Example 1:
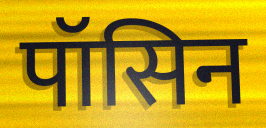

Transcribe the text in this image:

पॉसिन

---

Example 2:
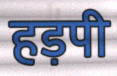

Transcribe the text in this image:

हड़पी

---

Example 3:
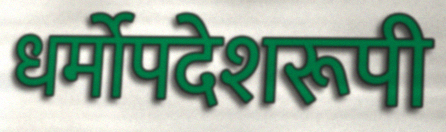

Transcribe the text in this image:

धर्मोपदेशरूपी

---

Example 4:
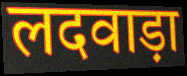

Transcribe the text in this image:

लदवाड़ा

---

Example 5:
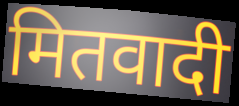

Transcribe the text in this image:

मितवादी